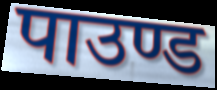
पाउण्‍ड